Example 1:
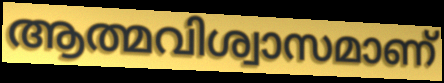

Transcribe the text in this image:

ആത്മവിശ്വാസമാണ്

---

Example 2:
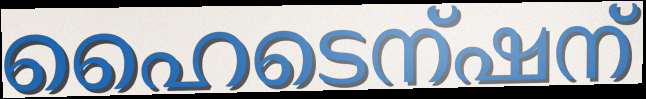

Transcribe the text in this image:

ഹൈടെന്ഷന്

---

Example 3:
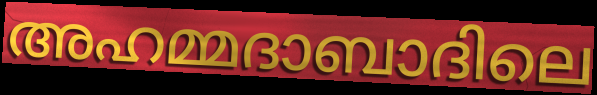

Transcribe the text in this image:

അഹമ്മദാബാദിലെ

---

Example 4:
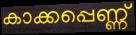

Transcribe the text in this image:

കാക്കപ്പെണ്ണ്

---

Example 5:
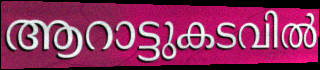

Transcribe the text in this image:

ആറാട്ടുകടവിൽ